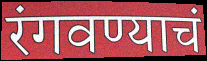
रंगवण्याचं